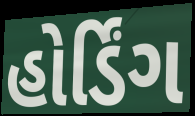
હોર્ડિંગ